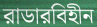
রাডারবিহীন